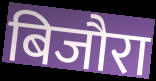
बिजौरा